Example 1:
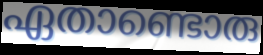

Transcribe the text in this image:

ഏതാണ്ടൊരു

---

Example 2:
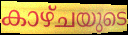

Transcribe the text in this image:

കാഴ്ചയുടെ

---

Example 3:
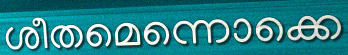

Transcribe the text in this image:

ശീതമെന്നൊക്കെ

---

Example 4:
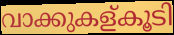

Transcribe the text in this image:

വാക്കുകള്കൂടി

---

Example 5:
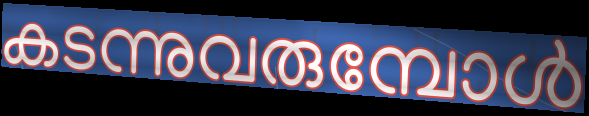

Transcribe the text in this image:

കടന്നുവരുമ്പോൾ